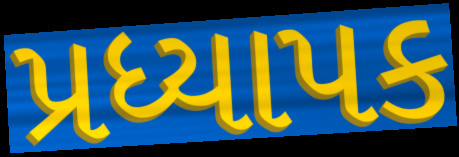
પ્રધ્યાપક